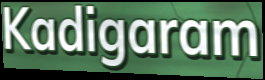
Kadigaram